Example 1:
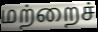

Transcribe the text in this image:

மற்றைச்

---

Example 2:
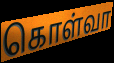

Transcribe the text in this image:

கொள்வா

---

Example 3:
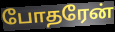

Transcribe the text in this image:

போதரேன்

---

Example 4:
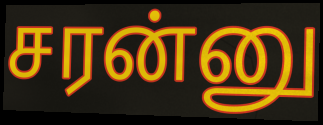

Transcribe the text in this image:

சரன்னு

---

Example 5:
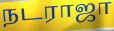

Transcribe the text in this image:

நடராஜா